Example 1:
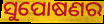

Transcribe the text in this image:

ସୁପୋଷଣର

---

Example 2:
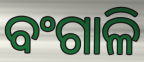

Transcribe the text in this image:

ବଂଗାଳି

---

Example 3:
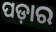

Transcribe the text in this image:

ପଡ଼ାର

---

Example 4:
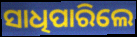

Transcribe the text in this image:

ସାଧିପାରିଲେ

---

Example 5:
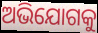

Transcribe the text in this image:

ଅଭିଯୋଗକୁ